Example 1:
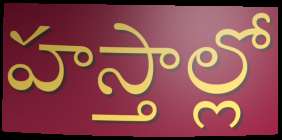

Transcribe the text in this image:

హస్తాల్లో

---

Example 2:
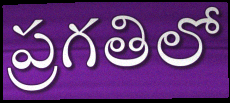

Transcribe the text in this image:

ప్రగతిలో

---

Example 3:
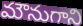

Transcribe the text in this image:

మౌనుగాని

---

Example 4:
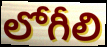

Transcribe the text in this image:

లోగీలి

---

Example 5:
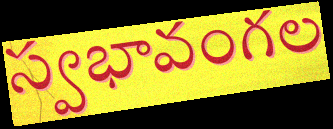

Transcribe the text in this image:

స్వభావంగల